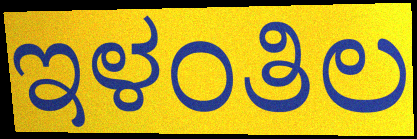
ಇಳಂತಿಲ